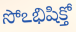
సోఽభిషిక్తో